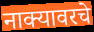
नाक्यावरचे